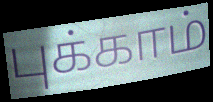
புக்காம்